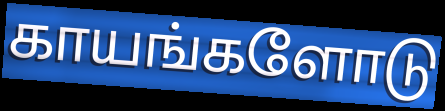
காயங்களோடு